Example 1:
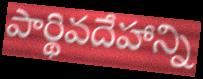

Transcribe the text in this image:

పార్థివదేహాన్ని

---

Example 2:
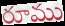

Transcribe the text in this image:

రూము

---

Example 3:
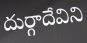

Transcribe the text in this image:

దుర్గాదేవిని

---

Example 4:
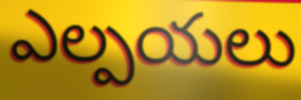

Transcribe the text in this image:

ఎల్పయలు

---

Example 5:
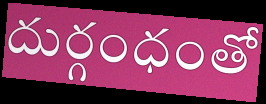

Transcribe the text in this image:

దుర్గంధంతో